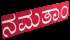
ನಮತಾಂ